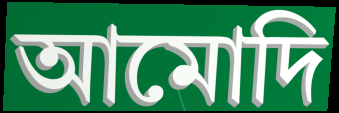
আমোদি